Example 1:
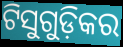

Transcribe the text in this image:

ଟିସୁଗୁଡ଼ିକର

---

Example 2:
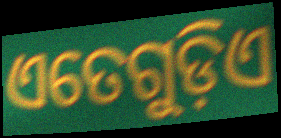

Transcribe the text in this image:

ଏତେଗୁଡ଼ିଏ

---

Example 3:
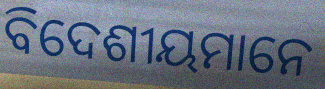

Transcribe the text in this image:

ବିଦେଶୀୟମାନେ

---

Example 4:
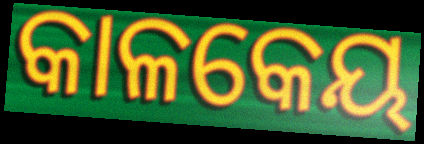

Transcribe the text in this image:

କାଳକେୟ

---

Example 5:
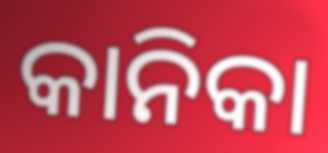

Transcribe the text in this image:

କାନିକା